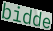
bidde